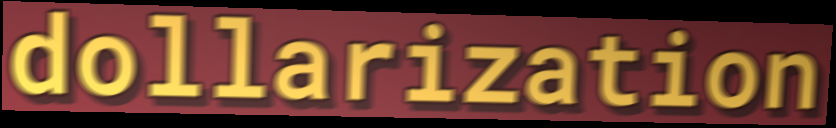
dollarization